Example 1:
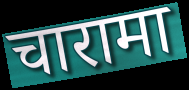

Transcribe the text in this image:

चारामा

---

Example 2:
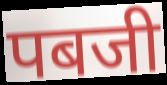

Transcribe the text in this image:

पबजी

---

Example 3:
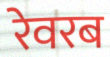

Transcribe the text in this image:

रेवरब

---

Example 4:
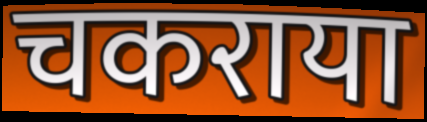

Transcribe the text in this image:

चकराया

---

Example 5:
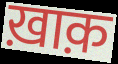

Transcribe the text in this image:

ख़ाक़